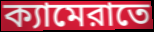
ক্যামেরাতে